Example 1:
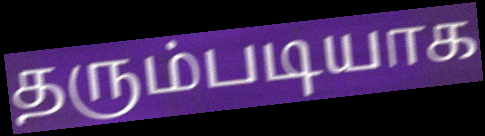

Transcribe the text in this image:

தரும்படியாக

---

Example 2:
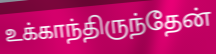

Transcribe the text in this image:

உக்காந்திருந்தேன்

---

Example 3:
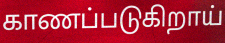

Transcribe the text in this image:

காணப்படுகிறாய்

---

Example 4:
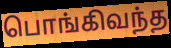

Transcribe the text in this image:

பொங்கிவந்த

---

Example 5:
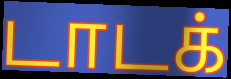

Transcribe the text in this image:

டாடக்